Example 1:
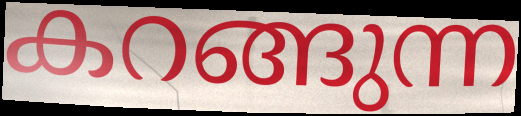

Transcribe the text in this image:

കറങ്ങുന്ന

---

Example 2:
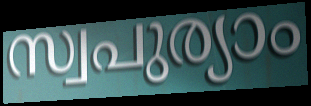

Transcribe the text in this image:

സ്വപുര്യാം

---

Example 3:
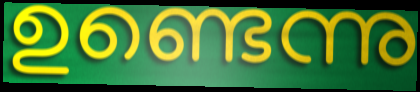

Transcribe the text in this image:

ഉണ്ടെന്നു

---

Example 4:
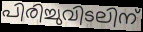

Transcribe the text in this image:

പിരിച്ചുവിടലിന്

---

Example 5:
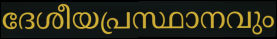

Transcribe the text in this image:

ദേശീയപ്രസ്ഥാനവും